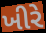
ખીરે